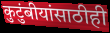
कुटुंबीयांसाठीही